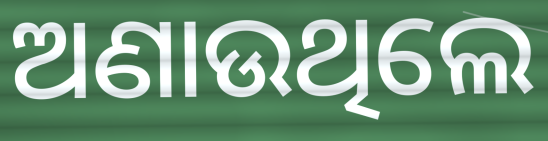
ଅଣାଉଥିଲେ